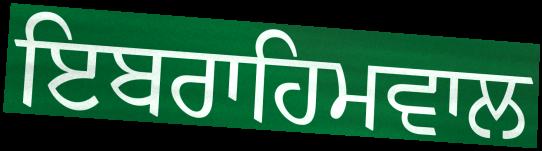
ਇਬਰਾਹਿਮਵਾਲ